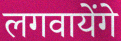
लगवायेंगे